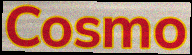
Cosmo